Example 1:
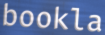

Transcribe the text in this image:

bookla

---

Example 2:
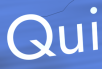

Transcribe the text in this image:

Qui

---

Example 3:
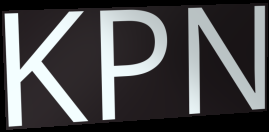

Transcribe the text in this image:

KPN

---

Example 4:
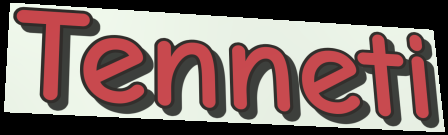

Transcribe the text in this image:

Tenneti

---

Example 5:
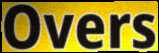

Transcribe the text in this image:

Overs